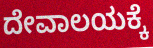
ದೇವಾಲಯಕ್ಕೆ